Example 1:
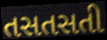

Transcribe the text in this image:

તસતસતી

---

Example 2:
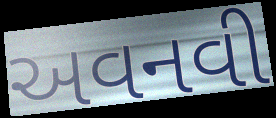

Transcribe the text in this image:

અવનવી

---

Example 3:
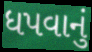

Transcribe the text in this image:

ધપવાનું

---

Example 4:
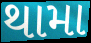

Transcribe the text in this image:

થામા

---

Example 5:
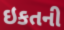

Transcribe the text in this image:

ઇકતની